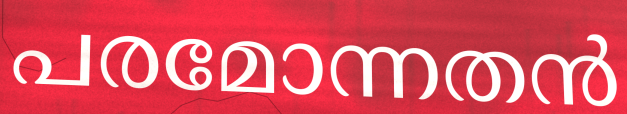
പരമോന്നതൻ